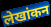
लेखांकन